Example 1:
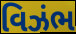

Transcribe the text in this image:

વિઝંભ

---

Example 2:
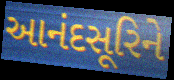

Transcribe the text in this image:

આનંદસૂરિને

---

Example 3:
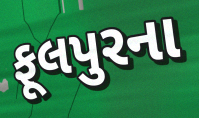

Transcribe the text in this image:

ફૂલપુરના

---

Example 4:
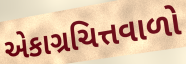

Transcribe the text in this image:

એકાગ્રચિત્તવાળો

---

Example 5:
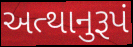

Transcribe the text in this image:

અત્થાનુરૂપં